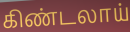
கிண்டலாய்